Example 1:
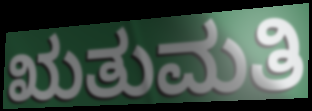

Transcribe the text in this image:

ಋತುಮತಿ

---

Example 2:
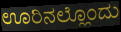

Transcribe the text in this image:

ಊರಿನಲ್ಲೊಂದು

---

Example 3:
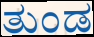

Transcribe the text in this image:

ತುಂಡ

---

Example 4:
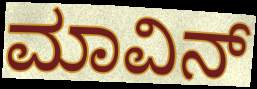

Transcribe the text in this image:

ಮಾವಿನ್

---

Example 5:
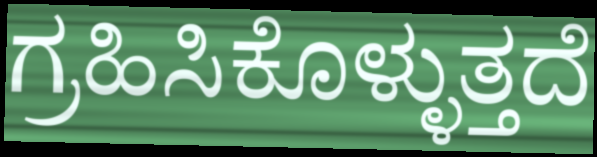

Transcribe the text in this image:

ಗ್ರಹಿಸಿಕೊಳ್ಳುತ್ತದೆ